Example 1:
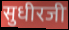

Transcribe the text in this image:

सुधीरजी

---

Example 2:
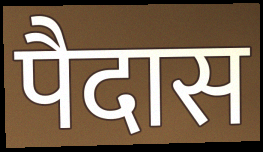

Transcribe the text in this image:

पैदास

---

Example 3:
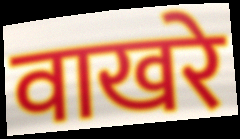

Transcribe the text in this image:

वाखरे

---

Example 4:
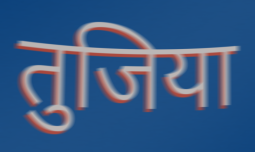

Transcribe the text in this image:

तुजिया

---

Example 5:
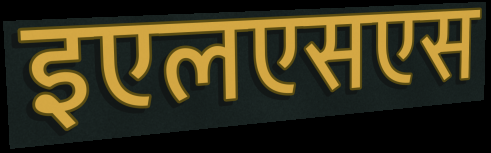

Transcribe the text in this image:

इएलएसएस